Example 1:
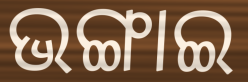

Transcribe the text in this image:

ଭଙ୍ଗାଇ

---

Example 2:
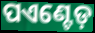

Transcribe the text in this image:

ପଏଣ୍ଟେଡ଼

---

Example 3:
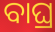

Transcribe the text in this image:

ବାଘ୍ର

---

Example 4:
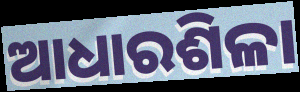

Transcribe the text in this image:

ଆଧାରଶିଳା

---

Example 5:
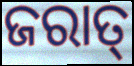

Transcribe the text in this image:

ଜରାତ୍